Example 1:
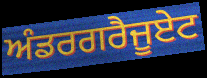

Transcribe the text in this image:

ਅੰਡਰਗਰੈਜੂਏਟ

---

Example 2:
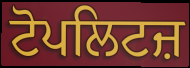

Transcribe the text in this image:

ਟੋਪਲਿਟਜ਼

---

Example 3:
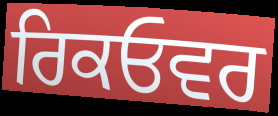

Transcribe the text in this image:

ਰਿਕਓਵਰ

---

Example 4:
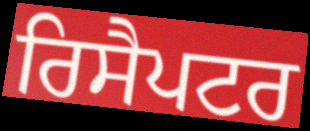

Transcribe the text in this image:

ਰਿਸੈਪਟਰ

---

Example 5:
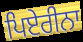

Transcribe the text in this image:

ਪਿਏਰੀਨਾ